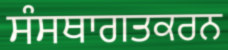
ਸੰਸਥਾਗਤਕਰਨ